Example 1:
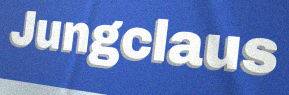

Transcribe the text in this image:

Jungclaus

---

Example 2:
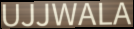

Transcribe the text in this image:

UJJWALA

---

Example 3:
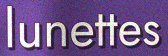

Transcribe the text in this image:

lunettes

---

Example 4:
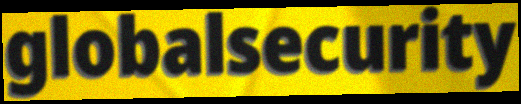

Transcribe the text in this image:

globalsecurity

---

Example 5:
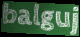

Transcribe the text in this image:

balguj